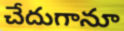
చేదుగానూ